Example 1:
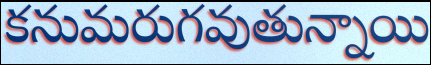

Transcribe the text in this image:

కనుమరుగవుతున్నాయి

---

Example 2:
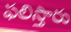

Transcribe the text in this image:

ఫలిస్తారు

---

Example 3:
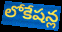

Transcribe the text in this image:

లోకేషన్ల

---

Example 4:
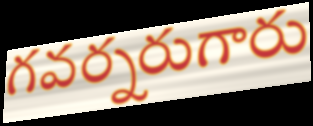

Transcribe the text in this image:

గవర్నరుగారు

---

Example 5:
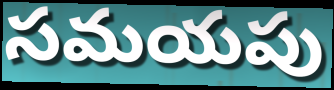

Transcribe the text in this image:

సమయపు